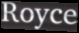
Royce